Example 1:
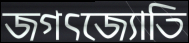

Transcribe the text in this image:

জগৎজ্যোতি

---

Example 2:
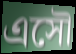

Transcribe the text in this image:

এসৌ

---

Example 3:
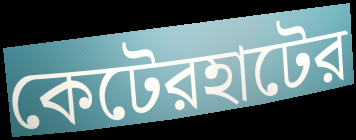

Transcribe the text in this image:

কেটেরহাটের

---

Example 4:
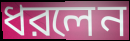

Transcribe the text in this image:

ধরলেন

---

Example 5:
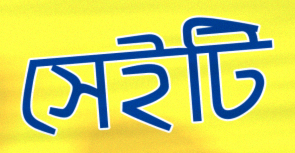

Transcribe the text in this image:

সেইটি